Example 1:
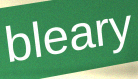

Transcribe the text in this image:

bleary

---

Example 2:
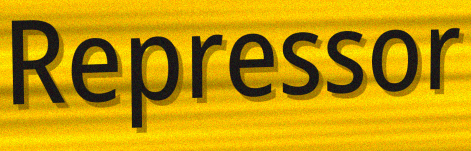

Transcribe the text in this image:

Repressor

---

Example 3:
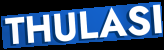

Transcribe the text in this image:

THULASI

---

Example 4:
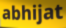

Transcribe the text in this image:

abhijat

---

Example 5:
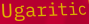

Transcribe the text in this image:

Ugaritic